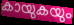
കായുകയും